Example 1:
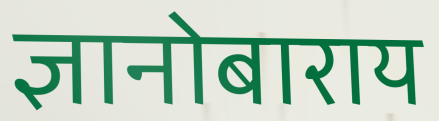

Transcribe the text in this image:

ज्ञानोबाराय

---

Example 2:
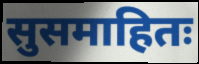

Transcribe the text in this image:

सुसमाहितः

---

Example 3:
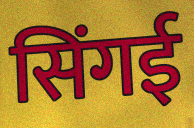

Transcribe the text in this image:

सिंगई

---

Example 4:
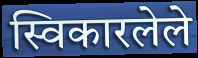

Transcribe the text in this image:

स्विकारलेले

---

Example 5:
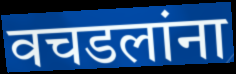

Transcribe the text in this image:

वचडलांना